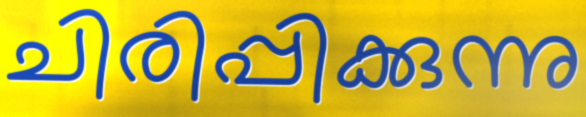
ചിരിപ്പിക്കുന്നു